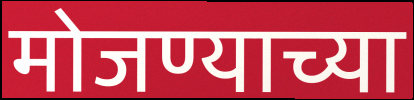
मोजण्याच्या